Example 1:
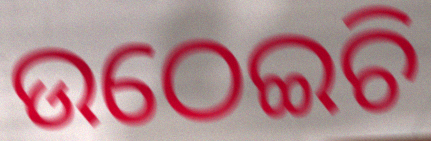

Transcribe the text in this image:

ଉଠେଇଚି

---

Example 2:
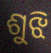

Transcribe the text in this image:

ଶୁଝି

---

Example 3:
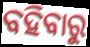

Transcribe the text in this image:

ବହିବାରୁ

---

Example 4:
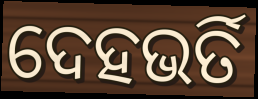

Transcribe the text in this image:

ଦେହଭର୍ତି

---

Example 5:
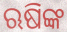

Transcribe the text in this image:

ଋଷିଙ୍କ